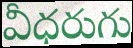
వీధరుగు